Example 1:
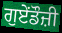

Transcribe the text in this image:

ਗੁਏਂਡੌਜ਼ੀ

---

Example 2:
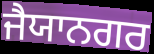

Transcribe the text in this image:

ਜੈਯਾਨਗਰ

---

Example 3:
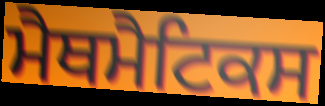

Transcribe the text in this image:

ਮੈਥਮੈਟਿਕਸ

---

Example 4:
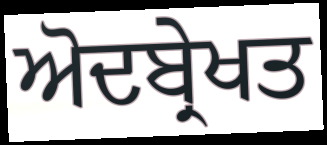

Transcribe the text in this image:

ਅੋਦਬ੍ਰੇਖਤ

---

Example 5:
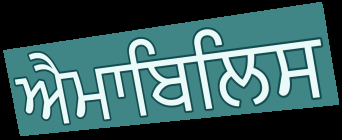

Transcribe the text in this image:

ਐਮਾਬਿਲਿਸ